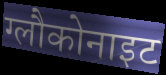
ग्लौकोनाइट